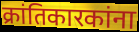
क्रांतिकारकांना